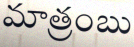
మాత్రంబు